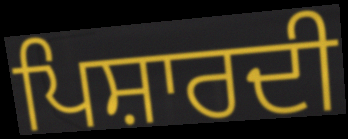
ਪਿਸ਼ਾਰਦੀ